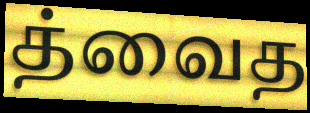
த்வைத